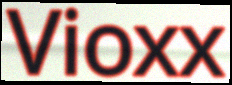
Vioxx